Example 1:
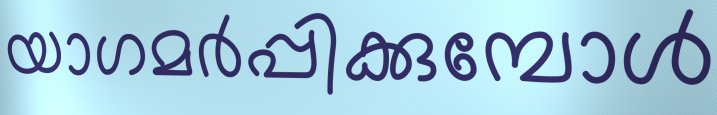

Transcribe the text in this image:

യാഗമർപ്പിക്കുമ്പോൾ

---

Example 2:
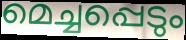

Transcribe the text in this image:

മെച്ചപ്പെടും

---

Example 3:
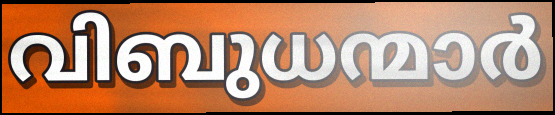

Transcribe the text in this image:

വിബുധന്മാർ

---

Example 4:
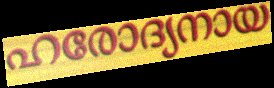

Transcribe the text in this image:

ഹരോദ്യനായ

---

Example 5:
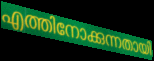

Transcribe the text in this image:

എത്തിനോക്കുന്നതായി